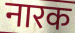
नारक